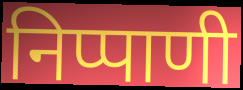
निप्पाणी